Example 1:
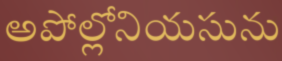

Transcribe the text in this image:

అపోల్లోనియసును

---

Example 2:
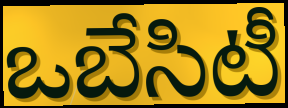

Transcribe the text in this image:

ఒబేసిటీ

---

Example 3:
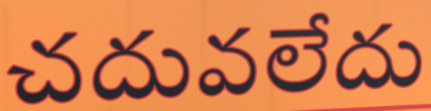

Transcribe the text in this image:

చదువలేదు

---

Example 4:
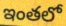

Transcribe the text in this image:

ఇంతలో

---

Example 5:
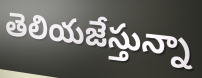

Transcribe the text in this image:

తెలియజేస్తున్నా